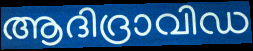
ആദിദ്രാവിഡ